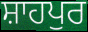
ਸ਼ਾਹਪੁਰ